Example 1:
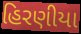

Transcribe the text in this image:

હિરણીયા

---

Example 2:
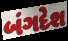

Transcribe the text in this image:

બંગદેશ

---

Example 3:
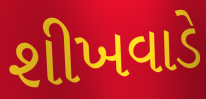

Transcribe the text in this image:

શીખવાડે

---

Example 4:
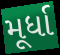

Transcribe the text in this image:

મૂર્ધા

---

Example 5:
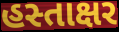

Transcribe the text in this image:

હસ્તાક્ષર